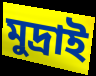
মুদ্রাই